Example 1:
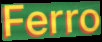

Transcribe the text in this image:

Ferro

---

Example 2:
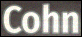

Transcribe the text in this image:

Cohn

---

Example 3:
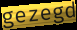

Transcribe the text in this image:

gezegd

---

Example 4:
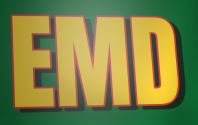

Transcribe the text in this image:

EMD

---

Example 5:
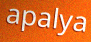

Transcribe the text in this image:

apalya